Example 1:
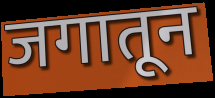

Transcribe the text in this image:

जगातून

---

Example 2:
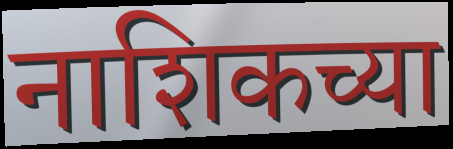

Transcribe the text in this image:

नाशिकच्या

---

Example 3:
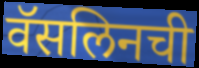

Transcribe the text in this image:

वॅसलिनची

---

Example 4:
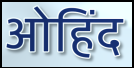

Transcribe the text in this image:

ओहिंद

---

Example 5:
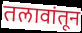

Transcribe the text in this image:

तलावांतून